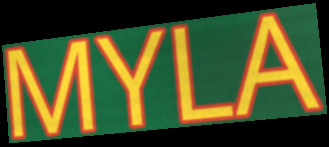
MYLA